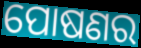
ପୋଷଣର